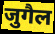
जुगैल